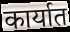
कार्यात